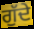
ਗੁੱਦੇ